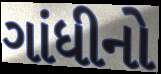
ગાંધીનો